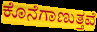
ಕೊನೆಗಾಣುತ್ತವೆ